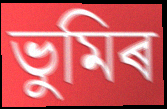
ভুমিৰ